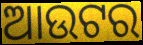
ଆଉଟର